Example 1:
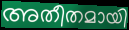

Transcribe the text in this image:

അതീതമായി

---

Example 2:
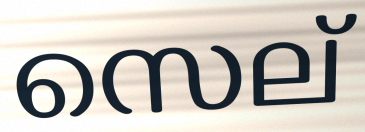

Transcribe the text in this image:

സെല്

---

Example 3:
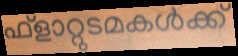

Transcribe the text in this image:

ഫ്ളാറ്റുടമകൾക്ക്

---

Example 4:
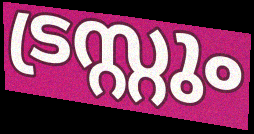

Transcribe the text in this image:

ട്രസ്റ്റും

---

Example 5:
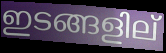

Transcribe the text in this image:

ഇടങ്ങളില്